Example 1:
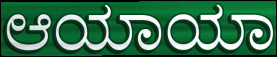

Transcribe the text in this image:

ಆಯಾಯಾ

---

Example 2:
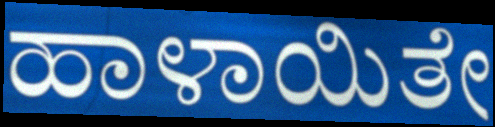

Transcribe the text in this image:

ಹಾಳಾಯಿತೇ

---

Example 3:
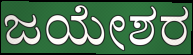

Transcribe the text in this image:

ಜಯೇಶರ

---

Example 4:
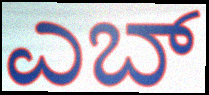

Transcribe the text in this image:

ಎಬ್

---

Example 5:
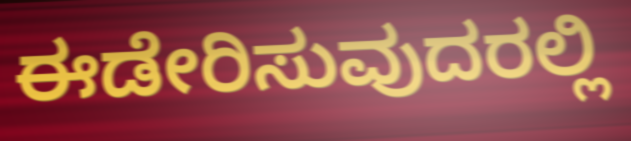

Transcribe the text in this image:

ಈಡೇರಿಸುವುದರಲ್ಲಿ